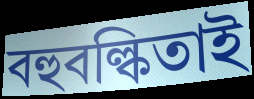
বহুবল্কিতাই